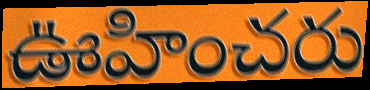
ఊహించరు